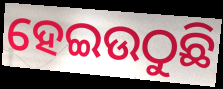
ହେଇଉଠୁଛି